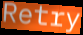
Retry